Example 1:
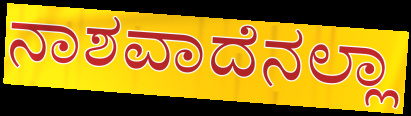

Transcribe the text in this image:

ನಾಶವಾದೆನಲ್ಲಾ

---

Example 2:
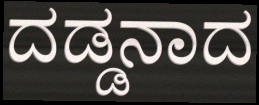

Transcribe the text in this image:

ದಡ್ಡನಾದ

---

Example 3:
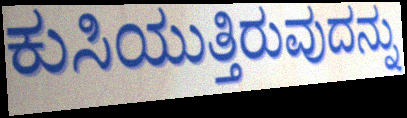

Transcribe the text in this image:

ಕುಸಿಯುತ್ತಿರುವುದನ್ನು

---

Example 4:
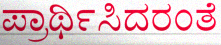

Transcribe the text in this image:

ಪ್ರಾರ್ಥಿಸಿದರಂತೆ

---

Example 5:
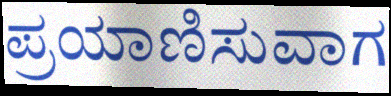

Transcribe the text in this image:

ಪ್ರಯಾಣಿಸುವಾಗ